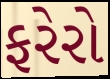
ફરેરો